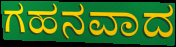
ಗಹನವಾದ